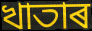
খাতাৰ